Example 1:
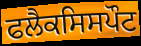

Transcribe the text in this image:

ਫਲੈਕਸਿਸਪੌਟ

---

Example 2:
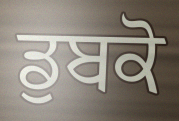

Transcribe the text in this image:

ਡੁਬਕੋ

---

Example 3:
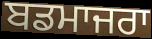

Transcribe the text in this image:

ਬਡਮਾਜਰਾ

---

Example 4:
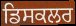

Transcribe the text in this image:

ਡਿਸਕਲਰ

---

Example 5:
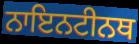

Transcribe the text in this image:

ਨਾਇਨਟੀਨਥ